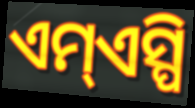
ଏମ୍ଏସ୍ପି